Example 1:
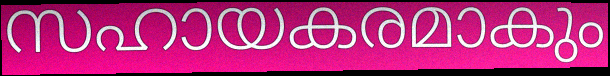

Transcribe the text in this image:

സഹായകരമാകും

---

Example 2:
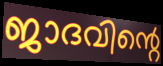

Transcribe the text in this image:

ജാദവിന്റെ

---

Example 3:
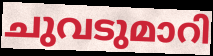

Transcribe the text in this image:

ചുവടുമാറി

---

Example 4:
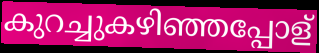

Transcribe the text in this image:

കുറച്ചുകഴിഞ്ഞപ്പോള്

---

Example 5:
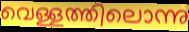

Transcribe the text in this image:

വെള്ളത്തിലൊന്നു